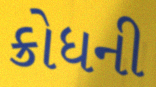
ક્રોધની